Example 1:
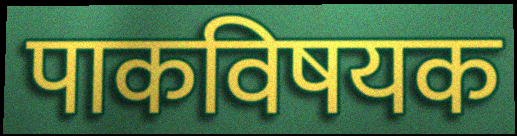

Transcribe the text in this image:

पाकविषयक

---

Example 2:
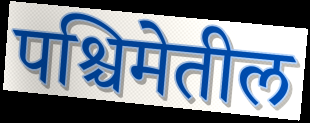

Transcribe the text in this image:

पश्चिमेतील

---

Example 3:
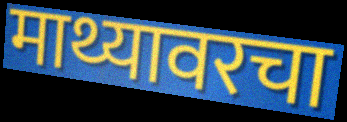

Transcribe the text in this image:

माथ्यावरचा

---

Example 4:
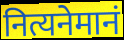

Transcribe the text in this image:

नित्यनेमानं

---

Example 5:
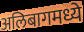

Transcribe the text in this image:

अलिबागमध्ये